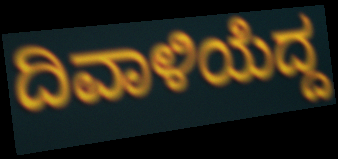
ದಿವಾಳಿಯೆದ್ದ